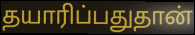
தயாரிப்பதுதான்